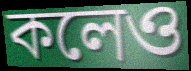
কলেও